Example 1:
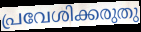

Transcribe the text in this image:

പ്രവേശിക്കരുതു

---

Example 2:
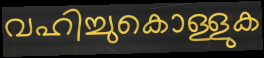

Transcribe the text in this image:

വഹിച്ചുകൊള്ളുക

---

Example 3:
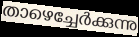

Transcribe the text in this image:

താഴെച്ചേർക്കുന്നു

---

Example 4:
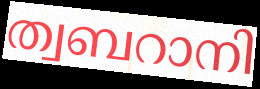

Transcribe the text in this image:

ത്വബറാനി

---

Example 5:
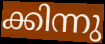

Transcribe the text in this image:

ക്കിന്നു